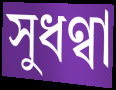
সুধণ্বা